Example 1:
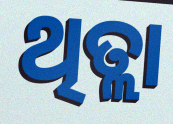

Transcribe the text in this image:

ଥିତ୍ଲା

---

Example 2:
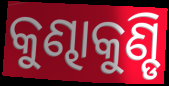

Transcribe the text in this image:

କୁଣ୍ଢାକୁଣ୍ଡି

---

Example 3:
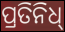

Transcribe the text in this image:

ପ୍ରତିନିଧ୍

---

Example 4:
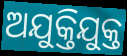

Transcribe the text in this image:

ଅଯୁକ୍ତିଯୁକ୍ତ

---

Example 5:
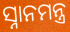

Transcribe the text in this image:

ସ୍ନାନମନ୍ତ୍ର